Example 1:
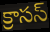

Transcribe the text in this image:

క్రాసస్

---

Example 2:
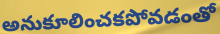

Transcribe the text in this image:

అనుకూలించకపోవడంతో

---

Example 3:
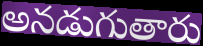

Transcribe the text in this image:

అనడుగుతారు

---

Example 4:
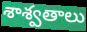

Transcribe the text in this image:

శాశ్వతాలు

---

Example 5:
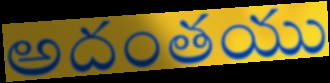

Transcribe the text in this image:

అదంతయు